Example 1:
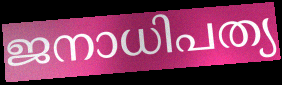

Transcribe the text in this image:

ജനാധിപത്യ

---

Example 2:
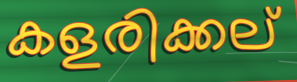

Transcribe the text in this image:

കളരിക്കല്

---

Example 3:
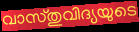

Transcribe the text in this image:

വാസ്തുവിദ്യയുടെ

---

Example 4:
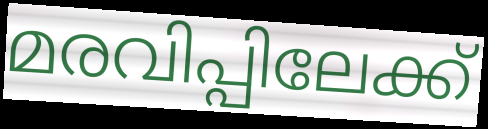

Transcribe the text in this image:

മരവിപ്പിലേക്ക്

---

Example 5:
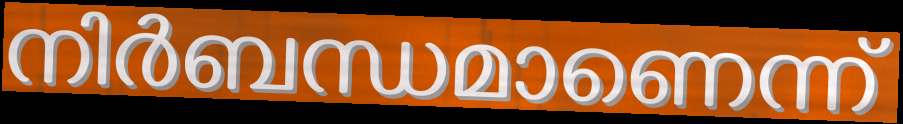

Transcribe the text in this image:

നിർബന്ധമാണെന്ന്